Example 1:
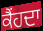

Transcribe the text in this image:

ਕੈਂਹਦਾ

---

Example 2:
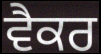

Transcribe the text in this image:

ਵੈਕਰ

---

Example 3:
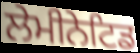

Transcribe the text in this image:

ਲੇਮੀਨੇਟਿਡ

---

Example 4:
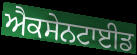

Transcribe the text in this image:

ਐਕਸੇਨਟਾਈਡ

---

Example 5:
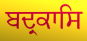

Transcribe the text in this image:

ਬਦ੍ਰਕਾਸਿ